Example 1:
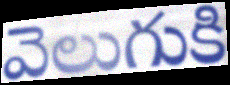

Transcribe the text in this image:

వెలుగుకి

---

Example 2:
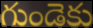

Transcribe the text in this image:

గుండెకు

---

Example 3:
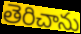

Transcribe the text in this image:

తెరిచాను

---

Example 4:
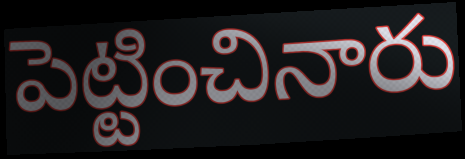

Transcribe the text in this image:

పెట్టించినారు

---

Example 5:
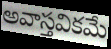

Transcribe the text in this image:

అవాస్తవికమే